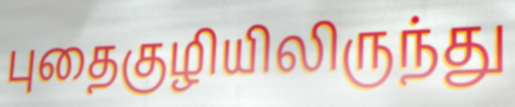
புதைகுழியிலிருந்து